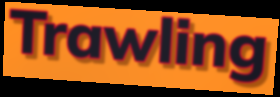
Trawling